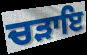
ਚੜਾਇ